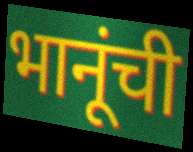
भानूंची